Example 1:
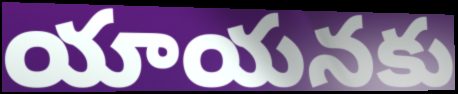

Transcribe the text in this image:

యాయనకు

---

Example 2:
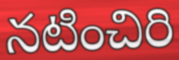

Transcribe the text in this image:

నటించిరి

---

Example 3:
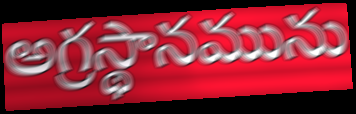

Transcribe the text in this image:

అగ్రస్థానమును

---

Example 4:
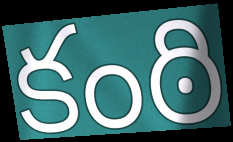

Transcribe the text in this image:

కంఠి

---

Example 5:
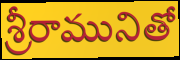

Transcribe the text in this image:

శ్రీరామునితో